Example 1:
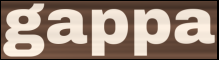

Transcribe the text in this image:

gappa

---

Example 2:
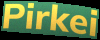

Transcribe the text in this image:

Pirkei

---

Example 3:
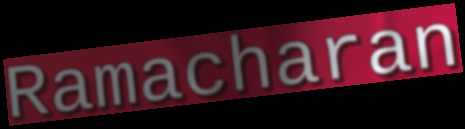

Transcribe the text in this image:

Ramacharan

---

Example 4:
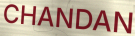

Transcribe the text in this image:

CHANDAN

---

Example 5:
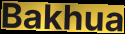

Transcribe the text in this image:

Bakhua